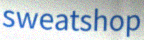
sweatshop